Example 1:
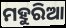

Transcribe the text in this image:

ମହୁରିଆ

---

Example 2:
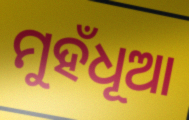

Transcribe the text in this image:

ମୁହଁଧୂଆ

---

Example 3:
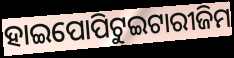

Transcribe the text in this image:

ହାଇପୋପିଟୁଇଟାରୀଜିମ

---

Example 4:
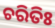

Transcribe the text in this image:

ଚରିତିଃ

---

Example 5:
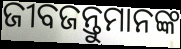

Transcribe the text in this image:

ଜୀବଜନ୍ତୁମାନଙ୍କ